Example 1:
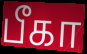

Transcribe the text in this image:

பீகா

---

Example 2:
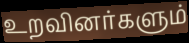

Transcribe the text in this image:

உறவினர்களும்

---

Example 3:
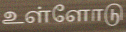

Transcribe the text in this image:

உள்ளோடு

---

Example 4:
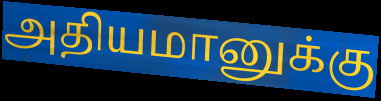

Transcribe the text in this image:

அதியமானுக்கு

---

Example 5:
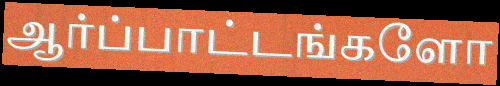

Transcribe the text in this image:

ஆர்ப்பாட்டங்களோ